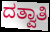
ದತ್ವಾತಿ